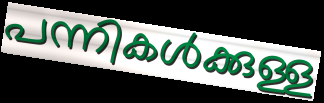
പന്നികൾക്കുള്ള